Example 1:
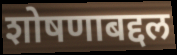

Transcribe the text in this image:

शोषणाबद्दल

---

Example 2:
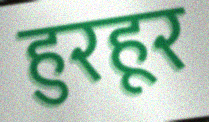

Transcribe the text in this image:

हुरहूर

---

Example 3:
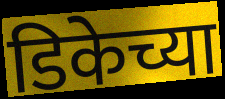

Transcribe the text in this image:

डिकेच्या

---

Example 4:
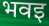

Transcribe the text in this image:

भवइ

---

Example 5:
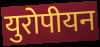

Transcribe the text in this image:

युरोपीयन